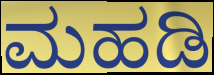
ಮಹಡಿ